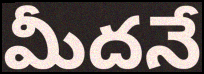
మీదనే